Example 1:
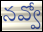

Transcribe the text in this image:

నవ్వో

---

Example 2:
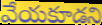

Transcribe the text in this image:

వేయకూడని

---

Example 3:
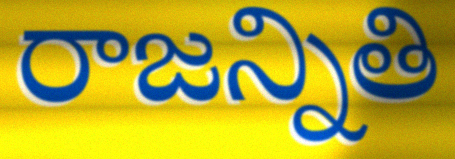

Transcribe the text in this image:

రాజన్నితి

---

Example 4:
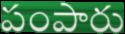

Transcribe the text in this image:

పంపారు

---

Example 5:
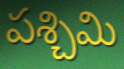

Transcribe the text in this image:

పశ్చిమి